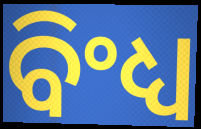
ବିଂଧ୍ୟ